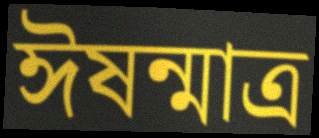
ঈষন্মাত্র